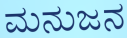
ಮನುಜನ